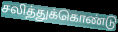
சலித்துக்கொண்டு